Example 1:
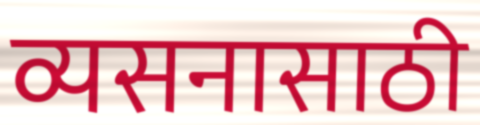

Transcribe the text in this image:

व्यसनासाठी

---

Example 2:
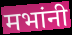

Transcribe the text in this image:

मभांनी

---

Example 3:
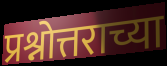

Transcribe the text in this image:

प्रश्नोत्तराच्या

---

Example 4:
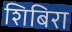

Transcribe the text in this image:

शिबिरा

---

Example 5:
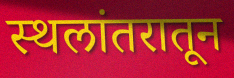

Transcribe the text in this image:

स्थलांतरातून